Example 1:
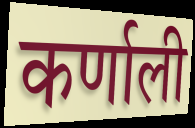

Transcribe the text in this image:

कर्णाली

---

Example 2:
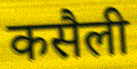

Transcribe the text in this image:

कसैली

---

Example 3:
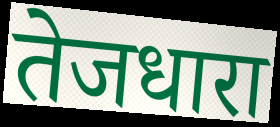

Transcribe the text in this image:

तेजधारा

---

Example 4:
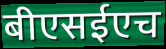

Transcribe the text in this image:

बीएसईएच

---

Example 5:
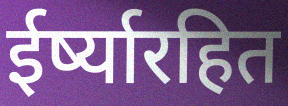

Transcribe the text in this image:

ईर्ष्यारहित